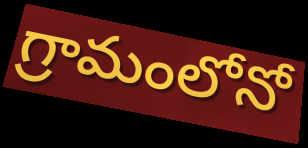
గ్రామంలోనో